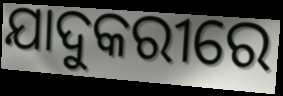
ଯାଦୁକରୀରେ